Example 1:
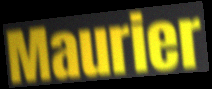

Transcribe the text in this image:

Maurier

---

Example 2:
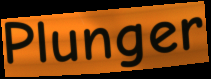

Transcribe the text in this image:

Plunger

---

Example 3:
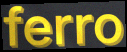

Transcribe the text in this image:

ferro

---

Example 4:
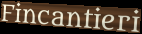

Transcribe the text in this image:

Fincantieri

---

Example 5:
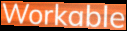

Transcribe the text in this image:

Workable